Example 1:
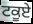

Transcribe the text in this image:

ਟਕੂਏ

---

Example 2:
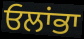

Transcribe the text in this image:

ਓਲਾਂਭਾ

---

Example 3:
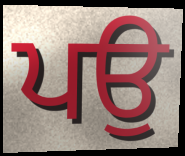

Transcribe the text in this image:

ਪਉ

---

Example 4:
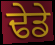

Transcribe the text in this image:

ਢੇਡੇ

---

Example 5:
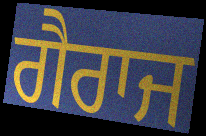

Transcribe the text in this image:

ਗੈਰਾਜ